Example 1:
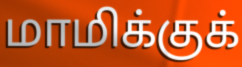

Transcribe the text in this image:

மாமிக்குக்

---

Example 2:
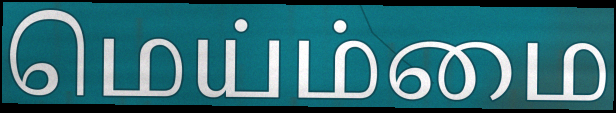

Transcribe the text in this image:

மெய்ம்மை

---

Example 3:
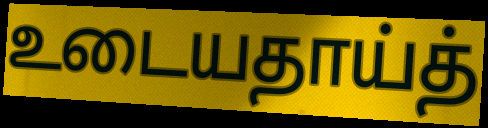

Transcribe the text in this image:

உடையதாய்த்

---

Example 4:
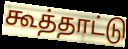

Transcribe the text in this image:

கூத்தாட்டு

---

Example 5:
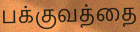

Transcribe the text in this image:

பக்குவத்தை